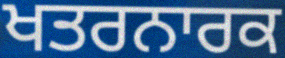
ਖਤਰਨਾਰਕ